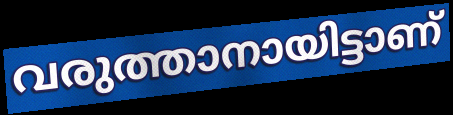
വരുത്താനായിട്ടാണ്